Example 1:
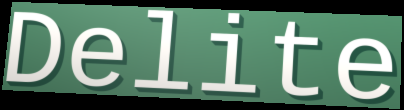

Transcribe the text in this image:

Delite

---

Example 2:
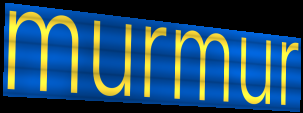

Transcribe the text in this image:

murmur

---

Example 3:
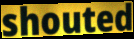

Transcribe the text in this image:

shouted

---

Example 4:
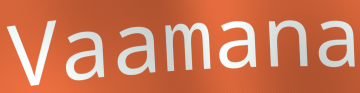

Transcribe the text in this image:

Vaamana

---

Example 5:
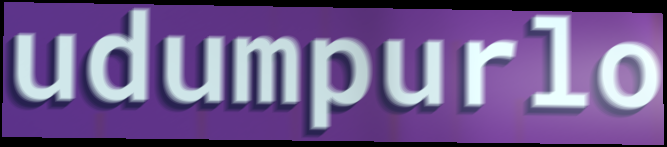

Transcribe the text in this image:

udumpurlo